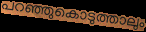
പറഞ്ഞുകൊടുത്താലും